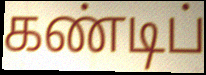
கண்டிப்